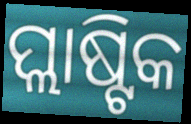
ପ୍ଲାଷ୍ଟିକ